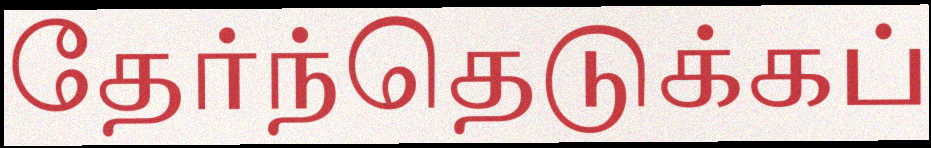
தேர்ந்தெடுக்கப்